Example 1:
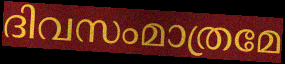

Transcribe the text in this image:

ദിവസംമാത്രമേ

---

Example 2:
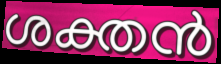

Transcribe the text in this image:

ശക്തൻ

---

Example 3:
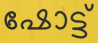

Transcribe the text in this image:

ഷോട്ട്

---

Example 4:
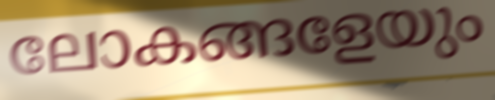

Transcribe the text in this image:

ലോകങ്ങളേയും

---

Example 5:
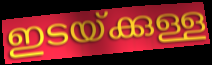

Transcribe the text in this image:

ഇടയ്‌ക്കുള്ള